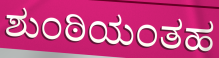
ಶುಂಠಿಯಂತಹ